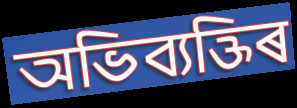
অভিব্যক্তিৰ